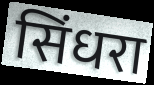
सिंधरा